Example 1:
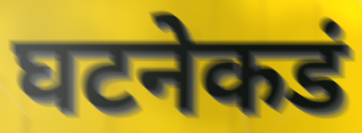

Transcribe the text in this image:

घटनेकडं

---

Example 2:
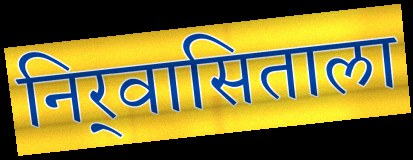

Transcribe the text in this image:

निर्वासिताला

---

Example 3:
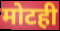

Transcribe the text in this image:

मोटही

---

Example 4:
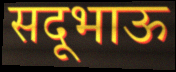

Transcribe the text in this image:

सदूभाऊ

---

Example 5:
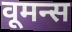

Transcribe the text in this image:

वूमन्स